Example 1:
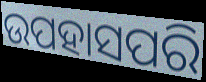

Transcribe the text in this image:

ଉପହାସପରି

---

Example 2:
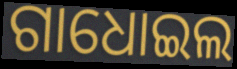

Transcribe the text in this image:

ଗାଧୋଇଲ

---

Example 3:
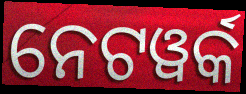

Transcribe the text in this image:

ନେଟୱର୍କ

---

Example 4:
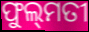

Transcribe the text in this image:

ଫୁଲ୍‍ମତୀ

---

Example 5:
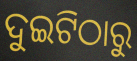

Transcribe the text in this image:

ଦୁଇଟିଠାରୁ